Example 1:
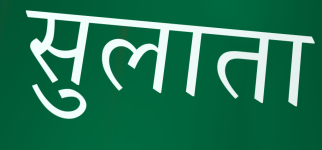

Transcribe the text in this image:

सुलाता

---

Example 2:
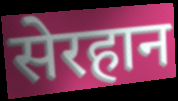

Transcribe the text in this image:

सेरहान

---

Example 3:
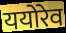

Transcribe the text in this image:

ययोरेव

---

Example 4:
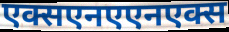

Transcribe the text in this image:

एक्सएनएएनएक्स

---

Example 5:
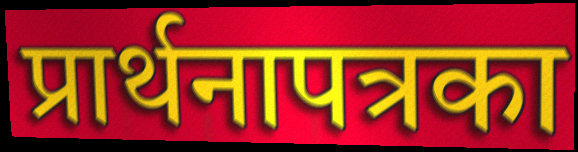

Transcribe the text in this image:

प्रार्थनापत्रका